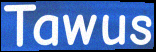
Tawus